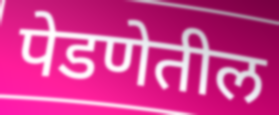
पेडणेतील